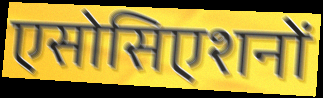
एसोसिएशनों